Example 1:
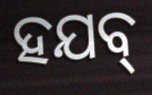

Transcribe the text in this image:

ହଯବ୍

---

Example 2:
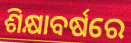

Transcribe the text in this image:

ଶିକ୍ଷାବର୍ଷରେ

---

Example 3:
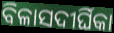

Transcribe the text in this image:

ବିଳାସଦୀର୍ଘିକା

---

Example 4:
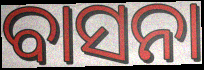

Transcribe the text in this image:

ବାସନା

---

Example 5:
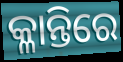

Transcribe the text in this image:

କ୍ଳାନ୍ତିରେ